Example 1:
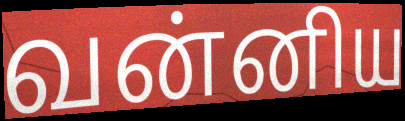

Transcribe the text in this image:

வன்னிய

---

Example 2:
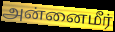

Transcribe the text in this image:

அன்னைமீர்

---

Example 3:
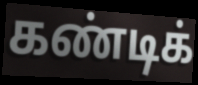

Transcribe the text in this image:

கண்டிக்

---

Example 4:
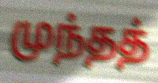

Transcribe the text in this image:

முந்தத்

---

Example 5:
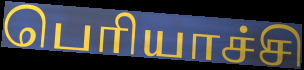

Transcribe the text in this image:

பெரியாச்சி